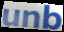
unb